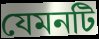
যেমনটি